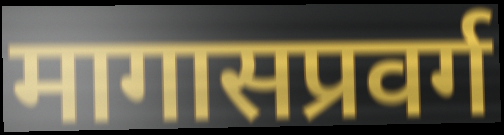
मागासप्रवर्ग